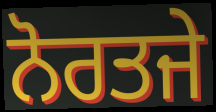
ਨੋਰਤਜੇ